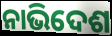
ନାଭିଦେଶ